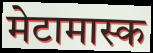
मेटामास्क